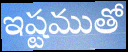
ఇష్టముతో